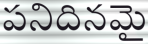
పనిదినమై